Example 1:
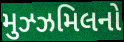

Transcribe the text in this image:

મુઝ્ઝમિલનો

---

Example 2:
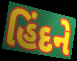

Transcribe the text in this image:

હિંદને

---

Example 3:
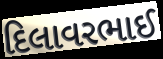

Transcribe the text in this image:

દિલાવરભાઈ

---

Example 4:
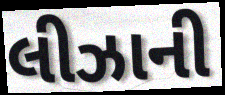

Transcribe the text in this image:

લીઝાની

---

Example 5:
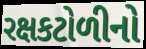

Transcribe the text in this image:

રક્ષકટોળીનો